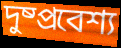
দুষ্প্রবেশ্য